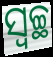
ସ୍ୱଚ୍ଛ